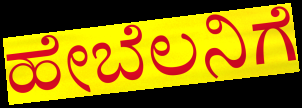
ಹೇಬೆಲನಿಗೆ